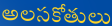
అలసకోతులు